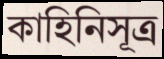
কাহিনিসূত্র